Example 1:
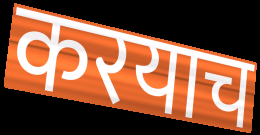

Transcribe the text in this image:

करयाच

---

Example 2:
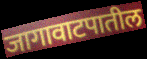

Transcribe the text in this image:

जागावाटपातील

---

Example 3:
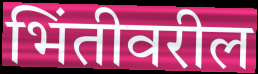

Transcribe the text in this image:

भिंतीवरील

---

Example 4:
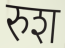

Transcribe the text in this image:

रुश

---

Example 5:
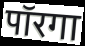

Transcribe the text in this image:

पॉरगा